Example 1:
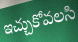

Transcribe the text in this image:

ఇచ్చుకోవలసి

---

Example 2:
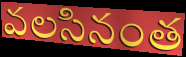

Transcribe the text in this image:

వలసినంత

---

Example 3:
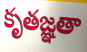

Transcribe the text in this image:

కృతజ్ఞతా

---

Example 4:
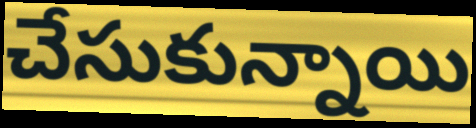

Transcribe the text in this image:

చేసుకున్నాయి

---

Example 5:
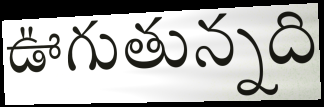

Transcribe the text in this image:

ఊగుతున్నది